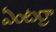
ఏంటర్రా